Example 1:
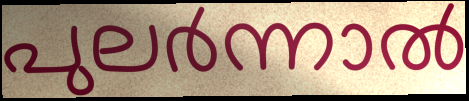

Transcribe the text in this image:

പുലർന്നാൽ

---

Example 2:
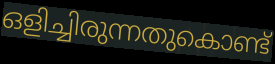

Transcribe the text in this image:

ഒളിച്ചിരുന്നതുകൊണ്ട്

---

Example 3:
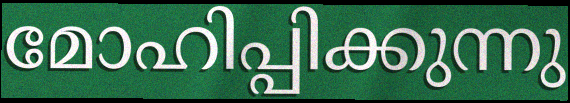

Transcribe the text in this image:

മോഹിപ്പിക്കുന്നു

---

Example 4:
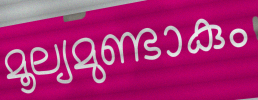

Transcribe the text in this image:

മൂല്യമുണ്ടാകും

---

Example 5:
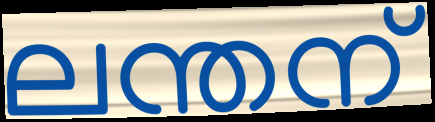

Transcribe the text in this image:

ലന്തന്